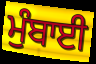
ਮੁੰਬਾਈ